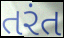
તરંત